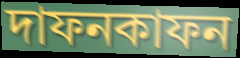
দাফনকাফন